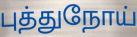
புத்துநோய்